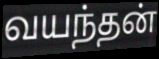
வயந்தன்